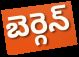
బెర్గెన్